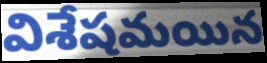
విశేషమయిన